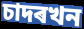
চাদৰখন